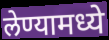
लेण्यामध्ये